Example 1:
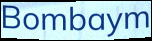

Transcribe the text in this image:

Bombaym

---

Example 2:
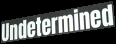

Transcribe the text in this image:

Undetermined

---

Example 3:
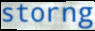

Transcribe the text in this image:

storng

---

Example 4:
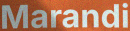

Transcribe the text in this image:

Marandi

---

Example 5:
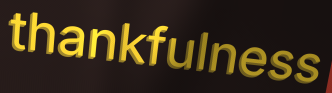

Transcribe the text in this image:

thankfulness